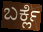
ಬರ್ಕ್ಲೆ